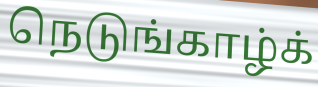
நெடுங்காழ்க்